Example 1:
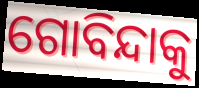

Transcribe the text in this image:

ଗୋବିନ୍ଦାକୁ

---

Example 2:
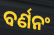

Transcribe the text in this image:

ବର୍ଣନଂ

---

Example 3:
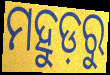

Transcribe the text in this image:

ମହୁଡ଼ରୁ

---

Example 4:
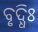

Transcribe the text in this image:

ବୃଦ୍ଧିଃ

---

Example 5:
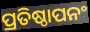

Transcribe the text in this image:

ପ୍ରତିଷ୍ଠାପନଂ